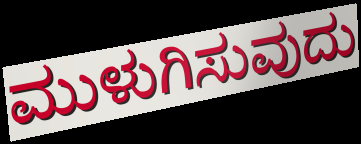
ಮುಳುಗಿಸುವುದು